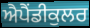
ਐਪੈਂਡੀਕੁਲਰ